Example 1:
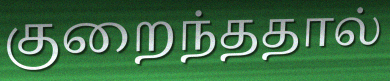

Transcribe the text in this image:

குறைந்ததால்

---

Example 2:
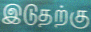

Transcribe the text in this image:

இடுதற்கு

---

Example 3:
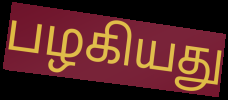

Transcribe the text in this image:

பழகியது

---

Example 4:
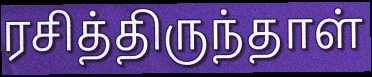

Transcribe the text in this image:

ரசித்திருந்தாள்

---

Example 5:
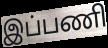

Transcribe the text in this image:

இப்பணி